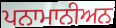
ਪਨਾਮਾਨੀਅਨ